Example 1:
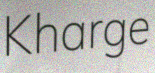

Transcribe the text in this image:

Kharge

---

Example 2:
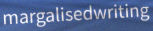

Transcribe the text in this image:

margalisedwriting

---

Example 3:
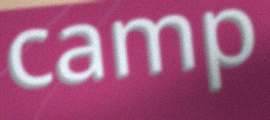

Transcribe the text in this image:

camp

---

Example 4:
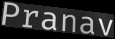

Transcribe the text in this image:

Pranav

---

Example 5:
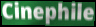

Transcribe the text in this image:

Cinephile